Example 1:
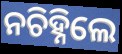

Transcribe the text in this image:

ନଚିହ୍ନିଲେ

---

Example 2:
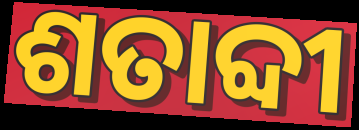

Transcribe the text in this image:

ଶତାବ୍ଦୀ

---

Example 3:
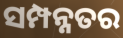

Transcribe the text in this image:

ସମ୍ପନ୍ନତର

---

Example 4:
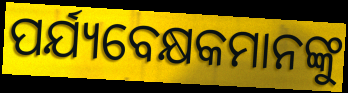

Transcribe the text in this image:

ପର୍ଯ୍ୟବେକ୍ଷକମାନଙ୍କୁ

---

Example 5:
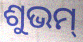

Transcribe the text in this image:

ଶୁଭମ୍